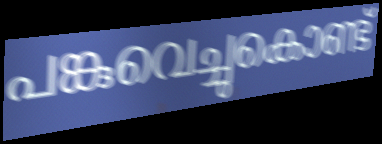
പങ്കുവെച്ചുകൊണ്ട്